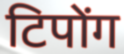
टिपोंग